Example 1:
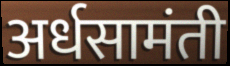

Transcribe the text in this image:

अर्धसामंती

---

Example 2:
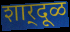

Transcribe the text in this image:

शार्दूळ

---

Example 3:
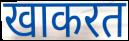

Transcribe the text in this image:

खाकरत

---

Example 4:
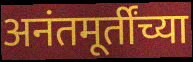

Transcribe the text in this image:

अनंतमूर्तींच्या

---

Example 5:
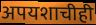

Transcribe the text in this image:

अपयशाचीही